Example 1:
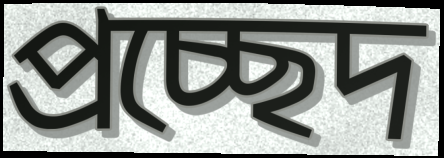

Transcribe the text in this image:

প্রচ্ছেদ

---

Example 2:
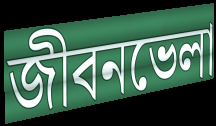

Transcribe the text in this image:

জীবনভেলা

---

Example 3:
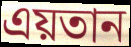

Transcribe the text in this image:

এয়তান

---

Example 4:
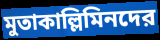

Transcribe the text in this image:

মুতাকাল্লিমিনদের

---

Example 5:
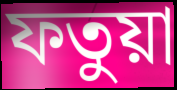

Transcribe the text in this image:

ফতুয়া